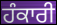
ਹੰਕਾਰੀ